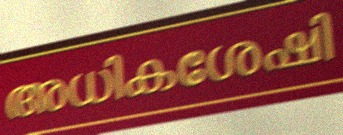
അധികശേഷി